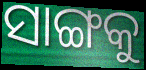
ସାଙ୍ଗକୁ